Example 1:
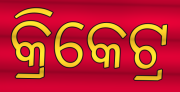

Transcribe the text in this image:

କ୍ରିକେଟ୍ର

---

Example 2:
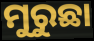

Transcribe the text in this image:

ମୁରୁଛା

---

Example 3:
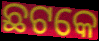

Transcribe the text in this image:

ଛଟକେ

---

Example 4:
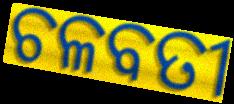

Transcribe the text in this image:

ଚଳବତୀ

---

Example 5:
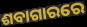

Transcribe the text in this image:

ଶବାଗାରରେ